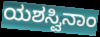
ಯಶಸ್ವಿನಾಂ